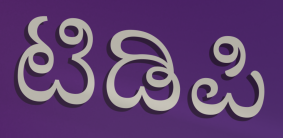
ಟಿಡಿಪಿ